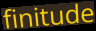
finitude